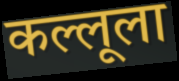
कल्लूला